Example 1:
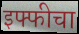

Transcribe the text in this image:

इफ्फीचा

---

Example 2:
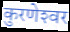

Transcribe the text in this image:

कुरणेश्वर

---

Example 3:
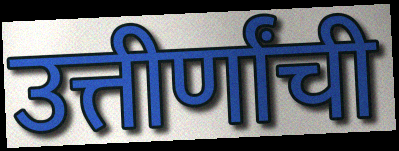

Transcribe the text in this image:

उत्तीर्णांची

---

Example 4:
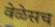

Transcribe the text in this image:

वेळेसच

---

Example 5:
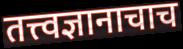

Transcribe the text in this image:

तत्त्वज्ञानाचाच